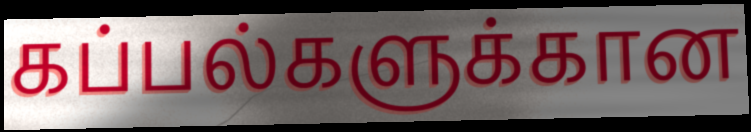
கப்பல்களுக்கான